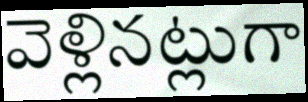
వెళ్లినట్లుగా